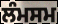
ਲੰਮਸਮ